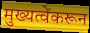
मुख्यत्वेंकरून